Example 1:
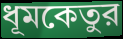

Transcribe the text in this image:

ধূমকেতুর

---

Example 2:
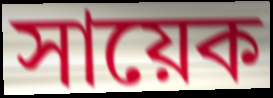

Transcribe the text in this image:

সায়েক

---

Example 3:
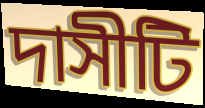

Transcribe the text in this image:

দাসীটি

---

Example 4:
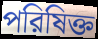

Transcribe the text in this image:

পরিষিক্ত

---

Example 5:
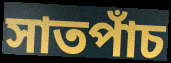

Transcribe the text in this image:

সাতপাঁচ